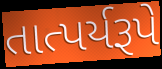
તાત્પર્યરૂપે